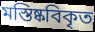
মস্তিষ্কবিকৃত